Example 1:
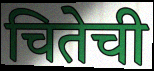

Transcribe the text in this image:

चितेची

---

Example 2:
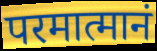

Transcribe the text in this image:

परमात्मानं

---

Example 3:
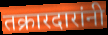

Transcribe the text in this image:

तक्रारदारांनी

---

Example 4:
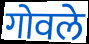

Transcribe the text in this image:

गोवले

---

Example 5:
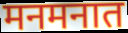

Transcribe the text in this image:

मनमनात